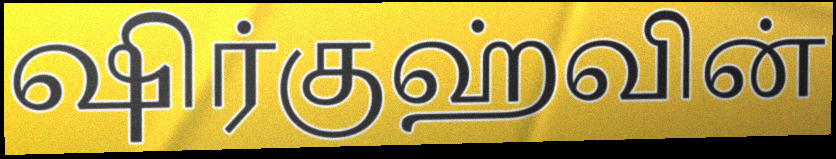
ஷிர்குஹ்வின்